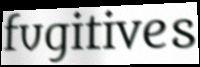
fugitives